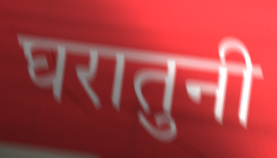
घरातुनी